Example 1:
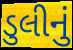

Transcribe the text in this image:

ડુલીનું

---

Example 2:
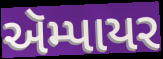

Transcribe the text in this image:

ઍમ્પાયર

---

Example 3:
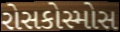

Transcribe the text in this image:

રોસકોસ્મોસ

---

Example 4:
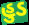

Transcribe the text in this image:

હુડ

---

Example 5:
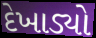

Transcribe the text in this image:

દેખાડ્યો